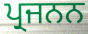
ਪ੍ਰਜਨਨ